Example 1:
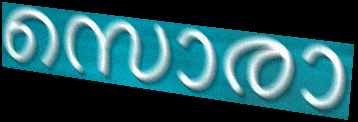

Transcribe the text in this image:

സൊരാ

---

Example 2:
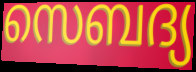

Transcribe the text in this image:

സെബദ്യ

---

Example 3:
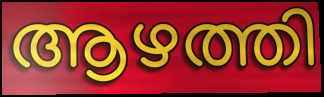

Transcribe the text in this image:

ആഴത്തി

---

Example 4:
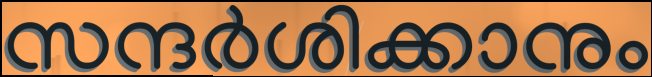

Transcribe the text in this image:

സന്ദർശിക്കാനും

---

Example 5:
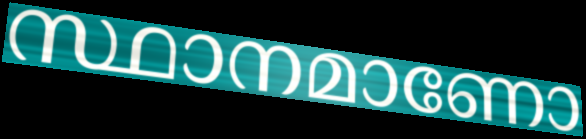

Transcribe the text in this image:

സ്ഥാനമാണോ